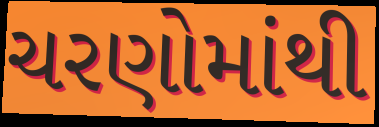
ચરણોમાંથી